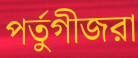
পর্তুগীজরা